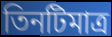
তিনটিমাত্র